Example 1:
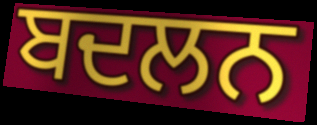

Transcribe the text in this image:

ਬਦਲਨ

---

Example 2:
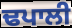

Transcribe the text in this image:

ਢਪਾਲੀ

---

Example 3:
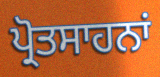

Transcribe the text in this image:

ਪ੍ਰੋਤਸਾਹਨਾਂ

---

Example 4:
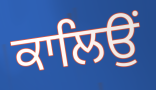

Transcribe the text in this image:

ਕਾਲਿਉਂ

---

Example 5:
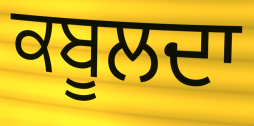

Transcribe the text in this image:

ਕਬੂਲਦਾ